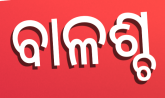
ବାଳଶ୍ଚ